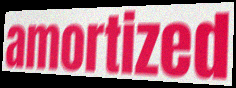
amortized